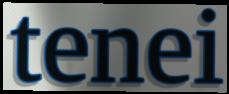
tenei